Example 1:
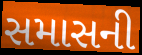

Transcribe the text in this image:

સમાસની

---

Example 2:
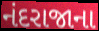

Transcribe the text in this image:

નંદરાજાના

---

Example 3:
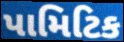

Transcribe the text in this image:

પામિટિક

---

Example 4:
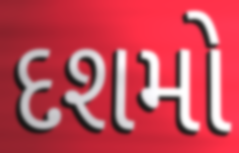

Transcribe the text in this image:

દશમો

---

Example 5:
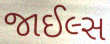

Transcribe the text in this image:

જાઈલ્સ